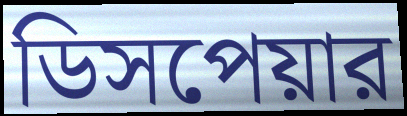
ডিসপেয়ার